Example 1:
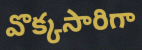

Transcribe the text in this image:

వొక్కసారిగా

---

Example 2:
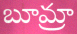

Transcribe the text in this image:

బూమ్రా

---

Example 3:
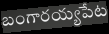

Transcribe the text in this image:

బంగారయ్యపేట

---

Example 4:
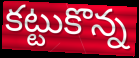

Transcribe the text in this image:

కట్టుకొన్న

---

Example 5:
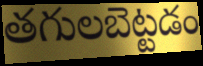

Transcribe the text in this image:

తగులబెట్టడం